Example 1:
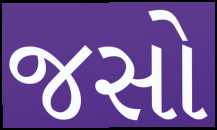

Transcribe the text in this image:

જસો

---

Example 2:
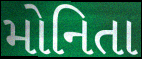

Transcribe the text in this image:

મોનિતા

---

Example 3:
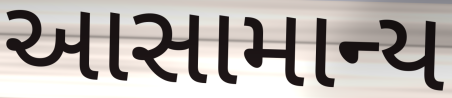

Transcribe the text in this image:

આસામાન્ય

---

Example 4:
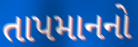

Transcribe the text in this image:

તાપમાનનો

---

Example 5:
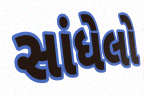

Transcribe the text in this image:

સાંધેલો